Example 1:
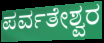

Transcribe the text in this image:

ಪರ್ವತೇಶ್ವರ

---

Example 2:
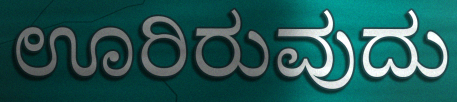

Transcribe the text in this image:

ಊರಿರುವುದು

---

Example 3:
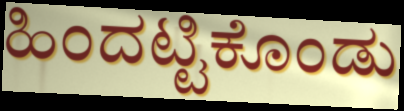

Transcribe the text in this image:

ಹಿಂದಟ್ಟಿಕೊಂಡು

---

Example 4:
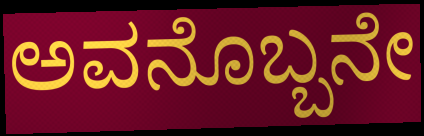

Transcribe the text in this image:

ಅವನೊಬ್ಬನೇ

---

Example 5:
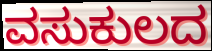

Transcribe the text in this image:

ವಸುಕುಲದ